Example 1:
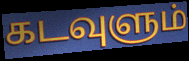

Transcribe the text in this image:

கடவுளும்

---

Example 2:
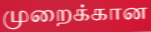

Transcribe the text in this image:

முறைக்கான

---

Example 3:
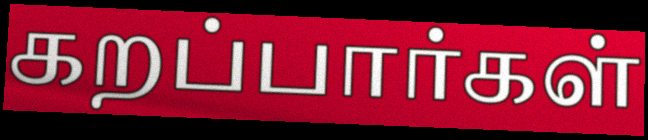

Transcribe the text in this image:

கறப்பார்கள்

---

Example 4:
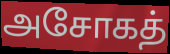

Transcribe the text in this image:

அசோகத்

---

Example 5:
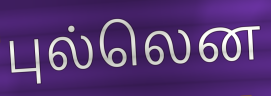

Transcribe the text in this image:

புல்லென